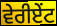
ਵੇਰੀਏਂਟ